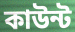
কাউন্ট